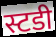
स्टडी